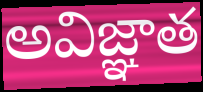
అవిజ్ఞాత